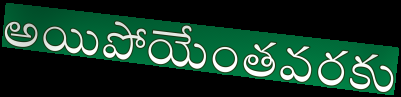
అయిపోయేంతవరకు